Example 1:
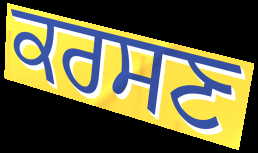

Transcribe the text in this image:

ਕਰਸਣ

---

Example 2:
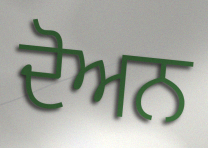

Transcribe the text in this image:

ਦੋਅਨ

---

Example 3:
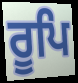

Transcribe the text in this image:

ਰੂਪਿ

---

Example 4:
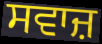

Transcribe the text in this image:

ਸਵਾਜ਼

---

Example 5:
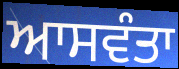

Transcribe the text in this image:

ਆਸਵੰਤਾ